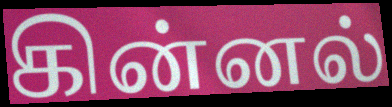
கின்னல்